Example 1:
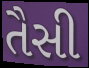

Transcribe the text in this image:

તૈસી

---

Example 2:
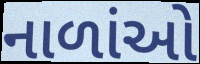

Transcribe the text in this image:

નાળાંઓ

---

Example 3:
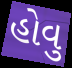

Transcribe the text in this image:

હોવુ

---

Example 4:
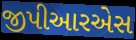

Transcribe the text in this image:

જીપીઆરએસ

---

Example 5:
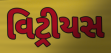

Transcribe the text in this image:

વિટ્રીયસ